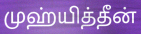
முஹ்யித்தீன்